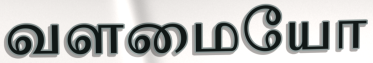
வளமையோ